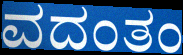
ವದಂತಂ